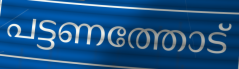
പട്ടണത്തോട്